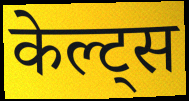
केल्ट्स